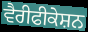
ਵੈਰੀਫੀਕੇਸ਼ਨ